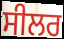
ਸੀਲਰ